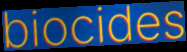
biocides